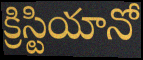
క్రిస్టియానో